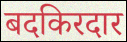
बदकिरदार